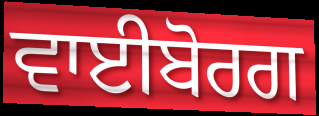
ਵਾਈਬੋਰਗ